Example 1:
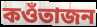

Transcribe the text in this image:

কওঁতাজন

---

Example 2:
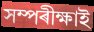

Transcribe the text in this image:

সম্পৰীক্ষাই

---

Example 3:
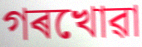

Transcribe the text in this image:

গৰখোৱা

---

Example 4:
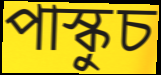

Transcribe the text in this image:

পাস্কুচ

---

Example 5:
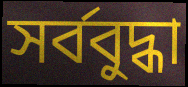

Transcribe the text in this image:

সৰ্ববুদ্ধা